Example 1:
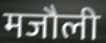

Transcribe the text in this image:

मजौली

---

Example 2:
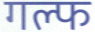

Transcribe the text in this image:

गल्फ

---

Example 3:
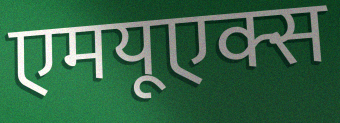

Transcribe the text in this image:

एमयूएक्स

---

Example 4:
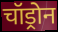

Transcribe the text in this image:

चॉड्रोन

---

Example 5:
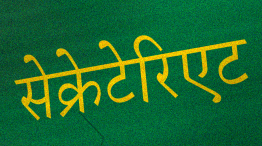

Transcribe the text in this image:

सेक्रेटेरिएट